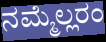
ನಮ್ಮೆಲ್ಲರಂ